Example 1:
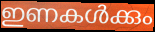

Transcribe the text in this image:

ഇണകൾക്കും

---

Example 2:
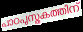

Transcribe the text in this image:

പാഠപുസ്തകത്തിന്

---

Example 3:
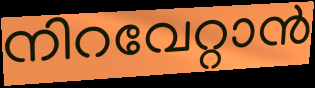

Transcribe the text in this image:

നിറവേറ്റാൻ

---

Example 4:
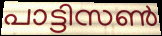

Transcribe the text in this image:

പാട്ടിസൺ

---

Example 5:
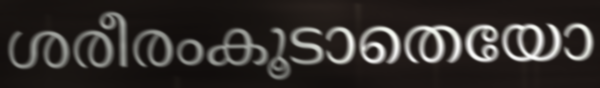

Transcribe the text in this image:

ശരീരംകൂടാതെയോ